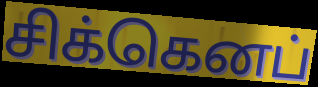
சிக்கெனப்